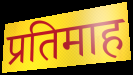
प्रतिमाह